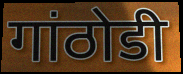
गांठोडी